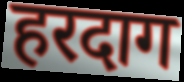
हरदाग